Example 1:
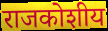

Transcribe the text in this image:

राजकोशीय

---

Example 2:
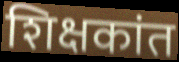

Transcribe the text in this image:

शिक्षकांत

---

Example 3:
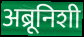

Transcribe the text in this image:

अब्रूनिशी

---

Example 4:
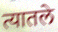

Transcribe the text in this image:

त्यातले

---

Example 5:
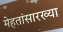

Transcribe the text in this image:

मेहतांसारख्या